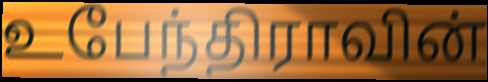
உபேந்திராவின்